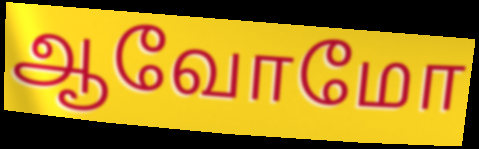
ஆவோமோ